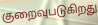
குறைவுபடுகிறது